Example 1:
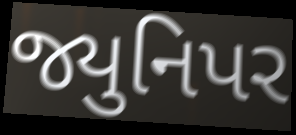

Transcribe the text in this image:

જ્યુનિપર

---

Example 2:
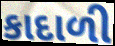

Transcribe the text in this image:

કાદાળી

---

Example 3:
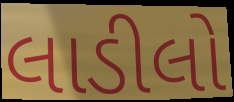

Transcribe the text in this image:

લાડીલો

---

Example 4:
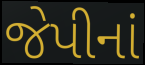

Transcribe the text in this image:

જેપીનાં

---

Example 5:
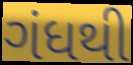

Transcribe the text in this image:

ગંધથી